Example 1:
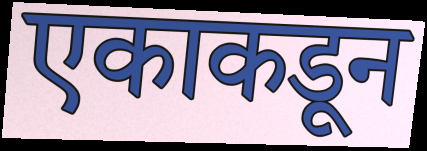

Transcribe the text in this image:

एकाकडून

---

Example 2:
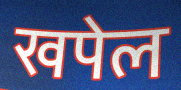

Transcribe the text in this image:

खपेल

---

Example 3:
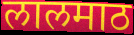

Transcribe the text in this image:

लालमाठ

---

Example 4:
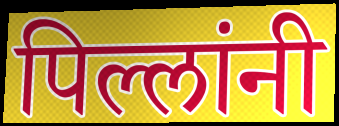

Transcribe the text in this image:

पिल्लांनी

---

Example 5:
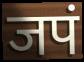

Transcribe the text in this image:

जपं